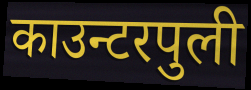
काउन्टरपुली